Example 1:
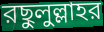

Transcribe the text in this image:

রছুলুল্লাহর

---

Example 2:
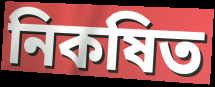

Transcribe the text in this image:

নিকষিত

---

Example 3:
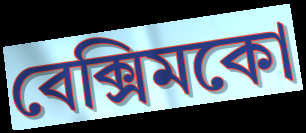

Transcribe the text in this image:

বেক্সিমকো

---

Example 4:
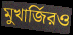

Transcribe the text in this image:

মুখার্জিরও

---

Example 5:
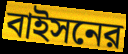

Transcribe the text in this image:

বাইসনের